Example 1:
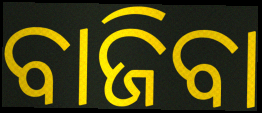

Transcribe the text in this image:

ବାଜିବା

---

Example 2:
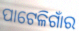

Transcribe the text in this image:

ପାଟେଳିଗାଁର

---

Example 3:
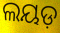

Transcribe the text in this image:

ଲୟଡ଼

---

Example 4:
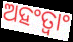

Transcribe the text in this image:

ଅହଂତ୍ୱାଂ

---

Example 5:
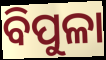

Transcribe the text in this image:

ବିପୁଳା